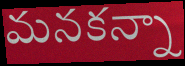
మనకన్నా